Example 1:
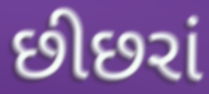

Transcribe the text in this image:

છીછરાં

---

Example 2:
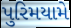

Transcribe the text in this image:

પુરિમયામે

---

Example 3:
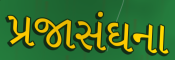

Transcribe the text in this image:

પ્રજાસંઘના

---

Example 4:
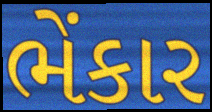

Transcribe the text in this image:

ભેંકાર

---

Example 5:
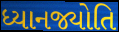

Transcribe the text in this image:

ધ્યાનજ્યોતિ